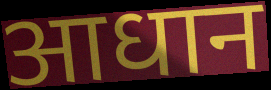
आधान